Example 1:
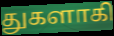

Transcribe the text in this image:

துகளாகி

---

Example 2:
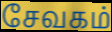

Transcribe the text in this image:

சேவகம்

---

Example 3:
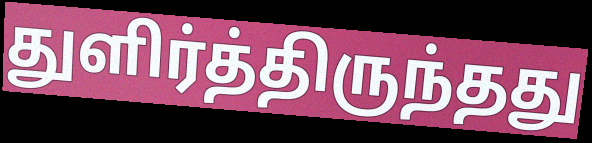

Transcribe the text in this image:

துளிர்த்திருந்தது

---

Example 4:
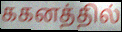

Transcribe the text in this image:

ககனத்தில்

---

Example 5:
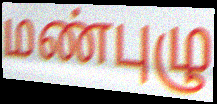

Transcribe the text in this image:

மண்புழு